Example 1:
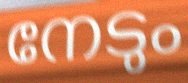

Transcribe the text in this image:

നേടും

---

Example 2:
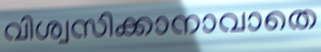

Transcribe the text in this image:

വിശ്വസിക്കാനാവാതെ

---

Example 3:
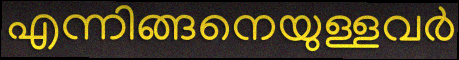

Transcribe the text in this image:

എന്നിങ്ങനെയുള്ളവർ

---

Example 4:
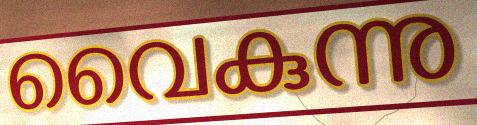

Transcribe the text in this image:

വൈകുന്നു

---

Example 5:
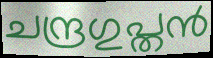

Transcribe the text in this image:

ചന്ദ്രഗുപ്തൻ